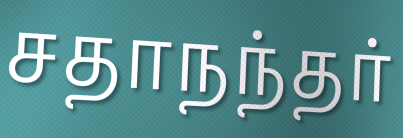
சதாநந்தர்